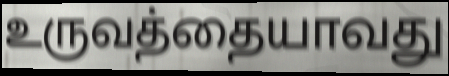
உருவத்தையாவது